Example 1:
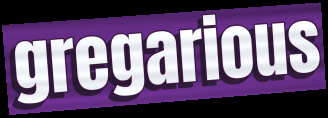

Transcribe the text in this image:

gregarious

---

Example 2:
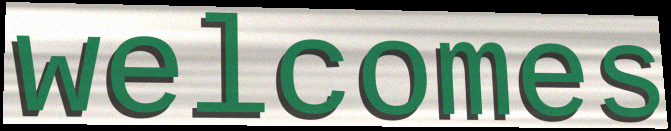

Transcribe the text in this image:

welcomes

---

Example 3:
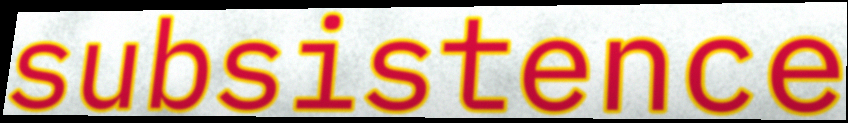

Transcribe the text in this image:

subsistence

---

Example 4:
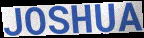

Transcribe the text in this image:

JOSHUA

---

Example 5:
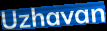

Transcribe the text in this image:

Uzhavan